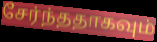
சேர்ந்ததாகவும்